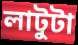
লাটুটা